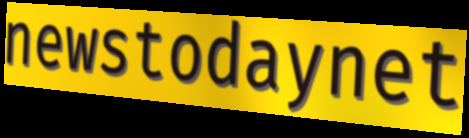
newstodaynet